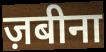
ज़बीना